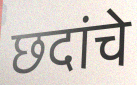
छदांचे